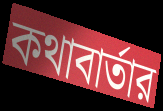
কথাবার্তার